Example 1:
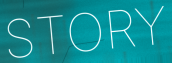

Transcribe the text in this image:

STORY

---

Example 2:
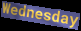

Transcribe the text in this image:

Wednesday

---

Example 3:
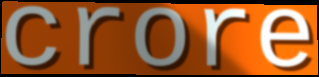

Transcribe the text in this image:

crore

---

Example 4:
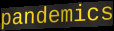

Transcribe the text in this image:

pandemics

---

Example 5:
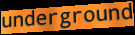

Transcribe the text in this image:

underground